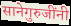
सानेगुरुजींनी